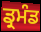
ਡ੍ਰਮੰਡ